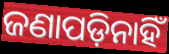
ଜଣାପଡ଼ିନାହିଁ